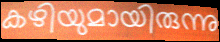
കഴിയുമായിരുന്നു